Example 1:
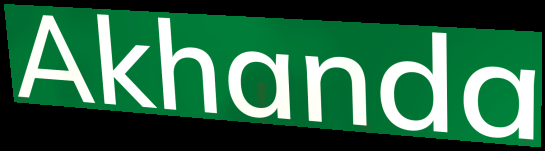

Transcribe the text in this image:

Akhanda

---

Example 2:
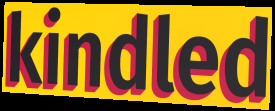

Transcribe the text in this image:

kindled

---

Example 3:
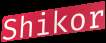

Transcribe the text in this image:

Shikor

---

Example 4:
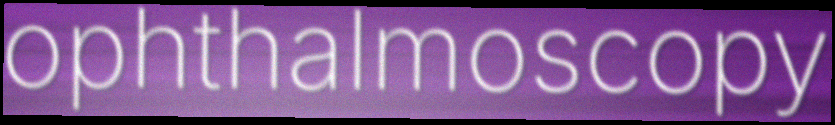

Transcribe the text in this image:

ophthalmoscopy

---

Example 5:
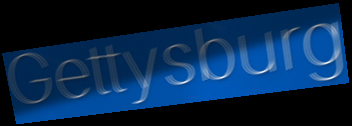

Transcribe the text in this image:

Gettysburg